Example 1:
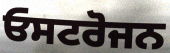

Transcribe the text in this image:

ਓਸਟਰੋਜਨ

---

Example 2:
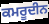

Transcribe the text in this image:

ਕਮਰੂਦੀਨ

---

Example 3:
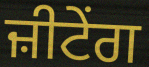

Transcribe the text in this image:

ਜ਼ੀਟੇਂਗ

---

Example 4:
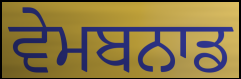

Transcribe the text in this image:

ਵੇਮਬਨਾਡ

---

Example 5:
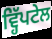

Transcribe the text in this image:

ਵ੍ਹਿੱਪਟੇਲ